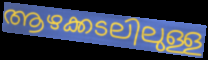
ആഴക്കടലിലുള്ള